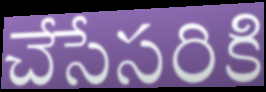
చేసేసరికి